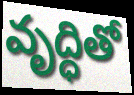
వృద్ధితో